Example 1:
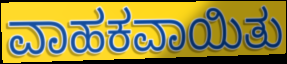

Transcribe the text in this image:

ವಾಹಕವಾಯಿತು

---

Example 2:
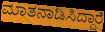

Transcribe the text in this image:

ಮಾತನಾಡಿಸಿದ್ದಾರೆ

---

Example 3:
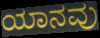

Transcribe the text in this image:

ಯಾನವು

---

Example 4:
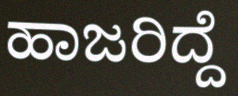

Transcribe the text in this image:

ಹಾಜರಿದ್ದೆ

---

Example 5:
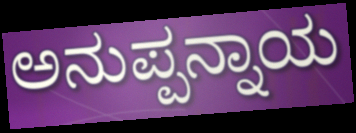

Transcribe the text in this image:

ಅನುಪ್ಪನ್ನಾಯ